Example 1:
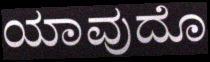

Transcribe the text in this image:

ಯಾವುದೊ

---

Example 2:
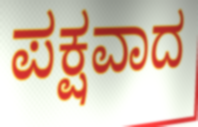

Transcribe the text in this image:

ಪಕ್ಷವಾದ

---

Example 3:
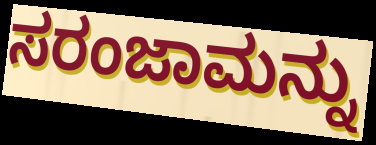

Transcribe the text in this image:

ಸರಂಜಾಮನ್ನು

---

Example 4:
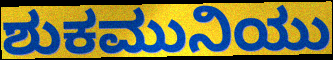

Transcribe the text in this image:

ಶುಕಮುನಿಯು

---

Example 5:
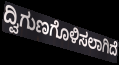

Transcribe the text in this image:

ದ್ವಿಗುಣಗೊಳಿಸಲಾಗಿದೆ